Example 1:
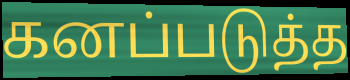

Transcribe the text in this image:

கனப்படுத்த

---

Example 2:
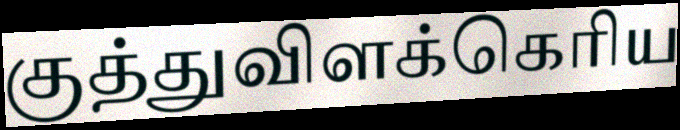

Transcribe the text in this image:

குத்துவிளக்கெரிய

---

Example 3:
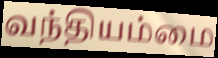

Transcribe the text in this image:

வந்தியம்மை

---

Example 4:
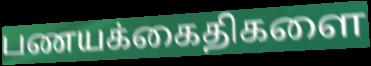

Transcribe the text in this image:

பணயக்கைதிகளை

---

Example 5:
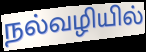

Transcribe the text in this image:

நல்வழியில்